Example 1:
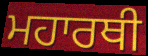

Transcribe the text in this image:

ਮਹਾਰਥੀ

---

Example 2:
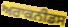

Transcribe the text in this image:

ਅਰਾਕਨੀਡਸ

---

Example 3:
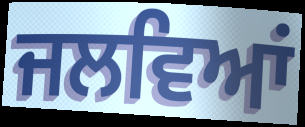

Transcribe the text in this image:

ਜਲਵਿਆਂ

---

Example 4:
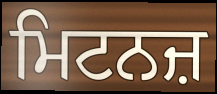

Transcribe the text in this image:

ਮਿਟਨਜ਼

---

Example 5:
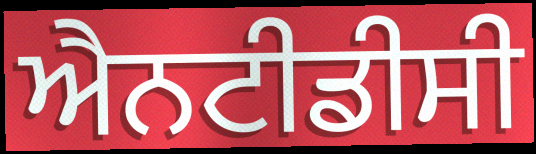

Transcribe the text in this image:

ਐਨਟੀਡੀਸੀ